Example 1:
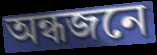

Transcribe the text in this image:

অন্ধজনে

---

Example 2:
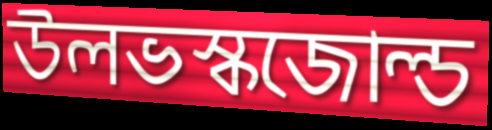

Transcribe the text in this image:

উলভস্কজোল্ড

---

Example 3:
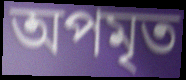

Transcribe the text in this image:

অপমৃত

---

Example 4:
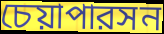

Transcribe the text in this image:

চেয়াপারসন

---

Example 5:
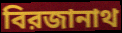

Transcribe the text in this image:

বিরজানাথ